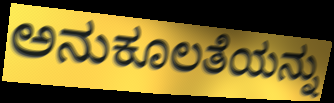
ಅನುಕೂಲತೆಯನ್ನು